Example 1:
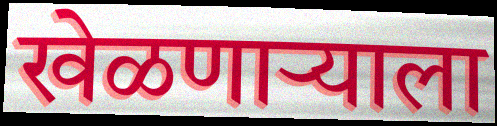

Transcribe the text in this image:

खेळणाऱ्याला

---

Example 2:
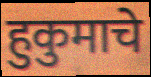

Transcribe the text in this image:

हुकुमाचे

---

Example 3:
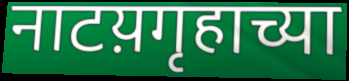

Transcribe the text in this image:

नाटय़गृहाच्या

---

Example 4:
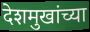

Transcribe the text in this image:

देशमुखांच्या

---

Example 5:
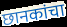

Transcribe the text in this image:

छानकांचा